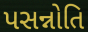
પસન્નોતિ